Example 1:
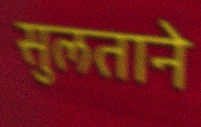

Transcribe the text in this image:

सुलताने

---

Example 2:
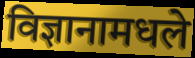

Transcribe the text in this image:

विज्ञानामधले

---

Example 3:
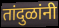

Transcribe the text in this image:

तांदुळांनी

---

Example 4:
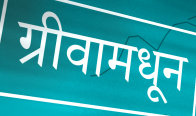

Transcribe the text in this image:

ग्रीवामधून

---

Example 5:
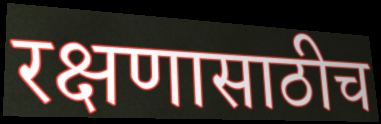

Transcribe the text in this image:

रक्षणासाठीच